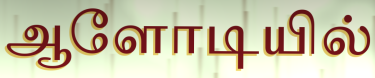
ஆளோடியில்